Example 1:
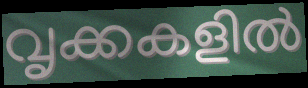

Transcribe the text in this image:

വൃക്കകളിൽ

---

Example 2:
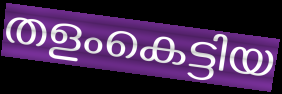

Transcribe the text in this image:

തളംകെട്ടിയ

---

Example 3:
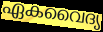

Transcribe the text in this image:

ഏകവൈദ്യ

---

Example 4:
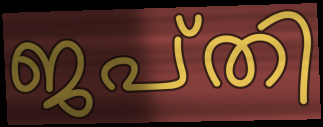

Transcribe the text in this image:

ജപ്‌തി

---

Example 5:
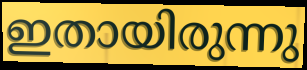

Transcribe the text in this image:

ഇതായിരുന്നു